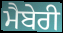
ਮੈਬੇਰੀ